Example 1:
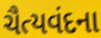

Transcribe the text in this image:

ચૈત્યવંદના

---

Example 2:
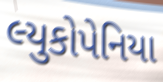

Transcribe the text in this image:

લ્યુકોપેનિયા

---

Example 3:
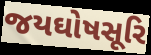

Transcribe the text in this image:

જયઘોષસૂરિ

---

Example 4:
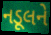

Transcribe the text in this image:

નડૂલને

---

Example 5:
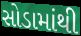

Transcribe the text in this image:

સોડામાંથી